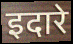
इदारे